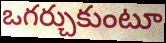
ఒగర్చుకుంటూ